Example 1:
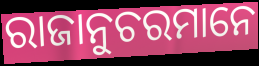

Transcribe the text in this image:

ରାଜାନୁଚରମାନେ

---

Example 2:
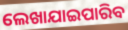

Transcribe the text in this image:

ଲେଖାଯାଇପାରିବ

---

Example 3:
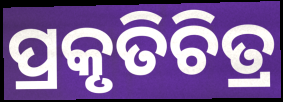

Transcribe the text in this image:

ପ୍ରକୃତିଚିତ୍ର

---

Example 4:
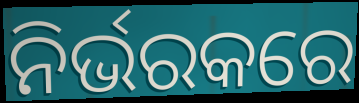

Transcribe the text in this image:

ନିର୍ଭରକରେ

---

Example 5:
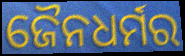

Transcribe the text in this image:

ଜୈନଧର୍ମର